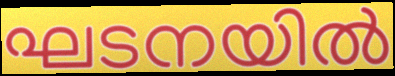
ഘടനയിൽ